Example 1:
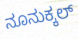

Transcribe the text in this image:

ನೂನುಕ್ಕಲ್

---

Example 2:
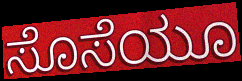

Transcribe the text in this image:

ಸೊಸೆಯೂ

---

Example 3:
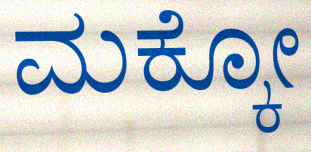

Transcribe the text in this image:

ಮಕ್ಕೋ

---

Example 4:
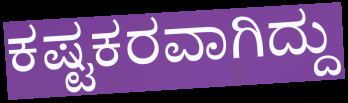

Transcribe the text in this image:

ಕಷ್ಟಕರವಾಗಿದ್ದು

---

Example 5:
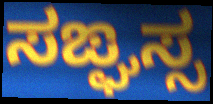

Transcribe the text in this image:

ಸಙ್ಘಸ್ಸ